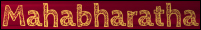
Mahabharatha